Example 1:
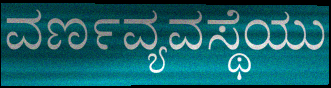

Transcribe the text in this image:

ವರ್ಣವ್ಯವಸ್ಥೆಯು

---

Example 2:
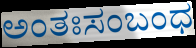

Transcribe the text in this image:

ಅಂತಃಸಂಬಂಧ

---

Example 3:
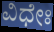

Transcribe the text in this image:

ವಿಧೇಃ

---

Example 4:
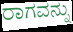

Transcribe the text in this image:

ರಾಗವನ್ನು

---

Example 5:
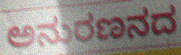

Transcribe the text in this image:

ಅನುರಣನದ